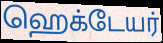
ஹெக்டேயர்